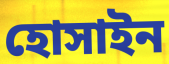
হোসাইন